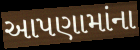
આપણામાંના